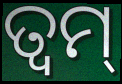
ତ୍ଵମ୍